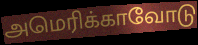
அமெரிக்காவோடு